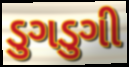
ડુગડુગી